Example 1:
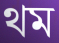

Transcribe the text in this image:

থম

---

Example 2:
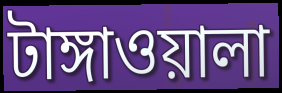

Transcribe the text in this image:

টাঙ্গাওয়ালা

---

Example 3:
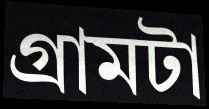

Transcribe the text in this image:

গ্রামটা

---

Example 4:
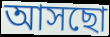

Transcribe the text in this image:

আসছো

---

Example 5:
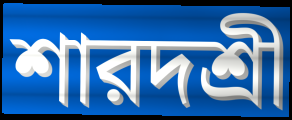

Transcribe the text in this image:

শারদশ্রী